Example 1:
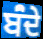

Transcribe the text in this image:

ਬਂੰਦੇ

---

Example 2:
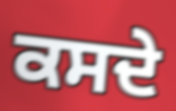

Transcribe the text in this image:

ਕਸਦੇ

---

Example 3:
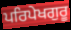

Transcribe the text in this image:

ਪਰਿਪੇਖਗੁਰੂ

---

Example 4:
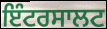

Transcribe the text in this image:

ਇੰਟਰਸਾਲਟ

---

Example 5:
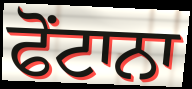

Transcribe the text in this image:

ਫੋਂਟਾਨਾ